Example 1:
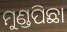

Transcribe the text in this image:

ମୁଣ୍ଡପିଛା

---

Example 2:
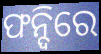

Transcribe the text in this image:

ଫନ୍ଦିରେ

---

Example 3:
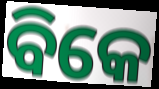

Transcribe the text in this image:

ବିକେ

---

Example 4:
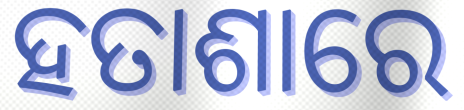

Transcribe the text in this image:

ହତାଶାରେ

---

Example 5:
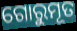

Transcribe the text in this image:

ଗୋରୁମୂତ